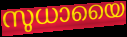
സുധായൈ